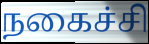
நகைச்சி